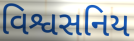
વિશ્વસનિય